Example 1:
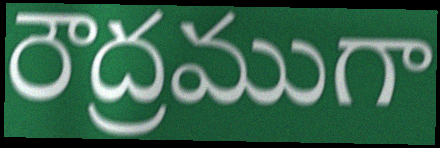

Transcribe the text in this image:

రౌద్రముగా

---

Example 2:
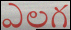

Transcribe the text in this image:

ఎలగ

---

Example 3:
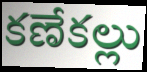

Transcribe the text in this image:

కణేకల్లు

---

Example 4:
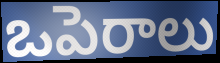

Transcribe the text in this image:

ఒపెరాలు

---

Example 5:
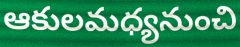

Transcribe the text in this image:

ఆకులమధ్యనుంచి